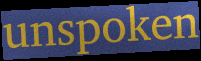
unspoken